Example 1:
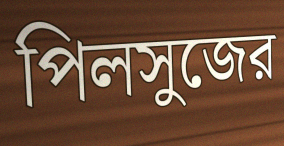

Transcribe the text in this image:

পিলসুজের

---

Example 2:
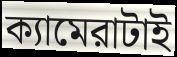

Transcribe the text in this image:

ক্যামেরাটাই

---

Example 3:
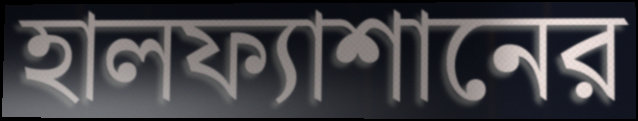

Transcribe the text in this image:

হালফ্যাশানের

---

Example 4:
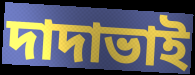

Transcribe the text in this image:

দাদাভাই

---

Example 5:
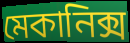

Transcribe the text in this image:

মেকানিক্স